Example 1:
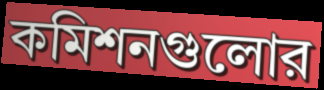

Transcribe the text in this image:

কমিশনগুলোর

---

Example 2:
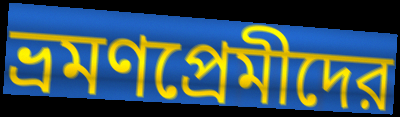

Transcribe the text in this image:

ভ্রমণপ্রেমীদের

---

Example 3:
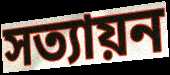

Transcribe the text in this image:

সত্যায়ন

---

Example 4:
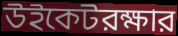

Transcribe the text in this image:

উইকেটরক্ষার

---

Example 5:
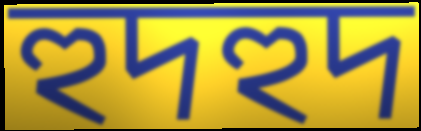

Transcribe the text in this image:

হুদহুদ